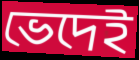
ভেদেই